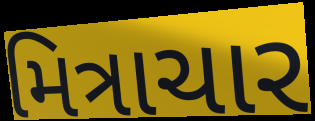
મિત્રાચાર